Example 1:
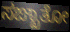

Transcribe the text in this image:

ಸಙ್ಖಾತೋ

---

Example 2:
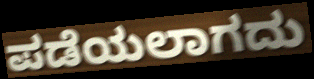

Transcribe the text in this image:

ಪಡೆಯಲಾಗದು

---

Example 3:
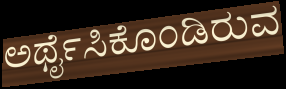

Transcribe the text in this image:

ಅರ್ಥೈಸಿಕೊಂಡಿರುವ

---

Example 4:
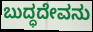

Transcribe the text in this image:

ಬುದ್ಧದೇವನು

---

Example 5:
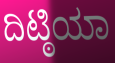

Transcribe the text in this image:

ದಿಟ್ಠಿಯಾ